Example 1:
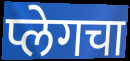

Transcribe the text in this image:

प्लेगचा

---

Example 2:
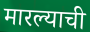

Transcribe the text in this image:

मारल्याची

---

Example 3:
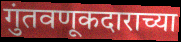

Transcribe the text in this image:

गुंतवणूकदाराच्या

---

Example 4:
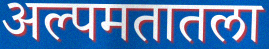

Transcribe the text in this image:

अल्पमतातला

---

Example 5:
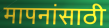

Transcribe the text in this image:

मापनांसाठी